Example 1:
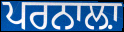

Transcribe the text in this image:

ਪਰਨਾਲ਼ਾ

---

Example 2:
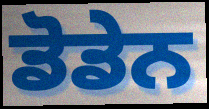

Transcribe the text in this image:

ਡੋਡੇਨ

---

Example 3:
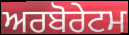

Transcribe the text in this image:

ਅਰਬੋਰੇਟਮ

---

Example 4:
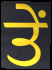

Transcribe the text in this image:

ਤੇੰ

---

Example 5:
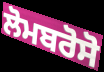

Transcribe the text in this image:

ਲੋਮਬਰੋਸੋ